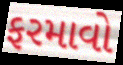
ફરમાવો